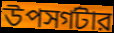
উপসর্গটার